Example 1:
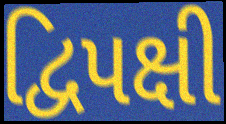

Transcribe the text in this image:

દ્વિપક્ષી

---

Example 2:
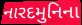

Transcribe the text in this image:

નારદમુનિના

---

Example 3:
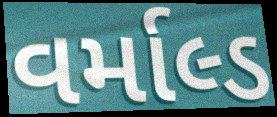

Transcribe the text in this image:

વર્માલ્ડ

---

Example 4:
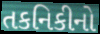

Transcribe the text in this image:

તકનિકીનો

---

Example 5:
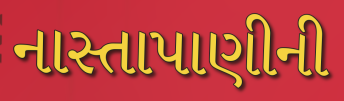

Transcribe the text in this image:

નાસ્તાપાણીની